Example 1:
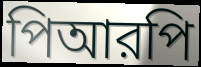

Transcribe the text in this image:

পিআরপি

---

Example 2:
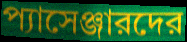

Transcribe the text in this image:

প্যাসেঞ্জারদের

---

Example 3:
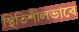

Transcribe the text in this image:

স্থিতিশীলভাবে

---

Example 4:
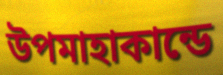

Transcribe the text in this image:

উপমাহাকান্ডে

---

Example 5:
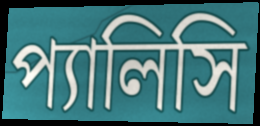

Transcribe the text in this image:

প্যালিসি